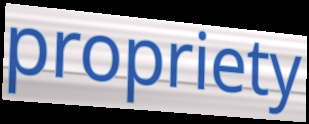
propriety